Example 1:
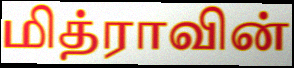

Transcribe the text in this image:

மித்ராவின்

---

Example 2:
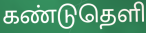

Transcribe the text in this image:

கண்டுதெளி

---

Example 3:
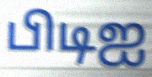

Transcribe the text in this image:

பிடிஐ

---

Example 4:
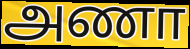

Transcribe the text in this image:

அணா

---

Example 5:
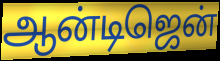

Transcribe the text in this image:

ஆன்டிஜென்